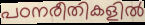
പഠനരീതികളിൽ